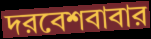
দরবেশবাবার